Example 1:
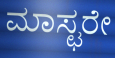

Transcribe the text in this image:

ಮಾಸ್ಟರೇ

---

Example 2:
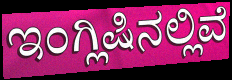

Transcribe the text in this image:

ಇಂಗ್ಲಿಷಿನಲ್ಲಿವೆ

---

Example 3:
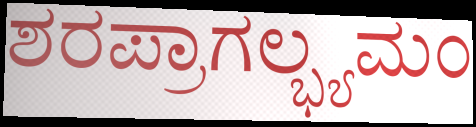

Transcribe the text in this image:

ಶರಪ್ರಾಗಲ್ಭ್ಯಮಂ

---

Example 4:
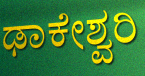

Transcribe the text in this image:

ಢಾಕೇಶ್ವರಿ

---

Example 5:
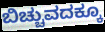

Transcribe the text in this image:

ಬಿಚ್ಚುವದಕ್ಕೂ